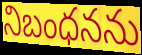
నిబంధనను